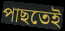
পাছতেই